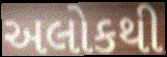
અલોકથી